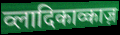
व्लादिकाव्काज़